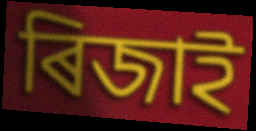
ৰিজাই